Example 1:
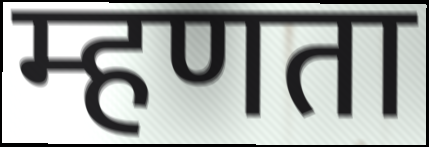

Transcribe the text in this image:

म्हणता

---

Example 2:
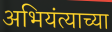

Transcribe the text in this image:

अभियंत्याच्या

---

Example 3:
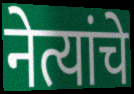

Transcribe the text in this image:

नेत्यांचे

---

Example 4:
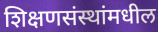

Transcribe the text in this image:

शिक्षणसंस्थांमधील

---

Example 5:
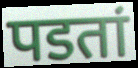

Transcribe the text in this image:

पडतां